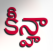
కీన్హా